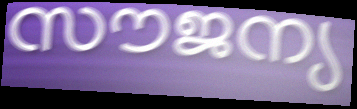
സൗജന്യ